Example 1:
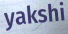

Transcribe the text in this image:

yakshi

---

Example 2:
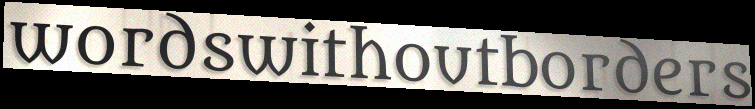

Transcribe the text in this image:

wordswithoutborders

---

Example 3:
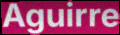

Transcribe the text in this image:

Aguirre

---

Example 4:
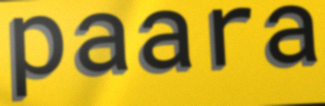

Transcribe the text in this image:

paara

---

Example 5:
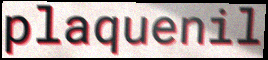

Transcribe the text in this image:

plaquenil